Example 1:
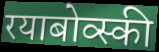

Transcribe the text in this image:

रयाबोव्स्की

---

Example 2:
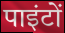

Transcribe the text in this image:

पाइंटों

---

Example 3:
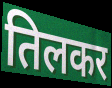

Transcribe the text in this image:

तिलकर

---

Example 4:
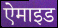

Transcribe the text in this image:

ऐमाइड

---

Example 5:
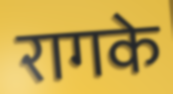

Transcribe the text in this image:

रागके